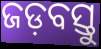
ଜଡ଼ବସ୍ତୁ